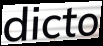
dicto